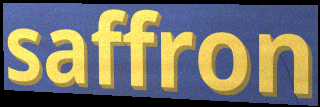
saffron